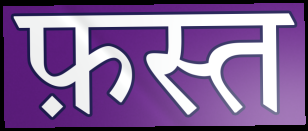
फ़स्त